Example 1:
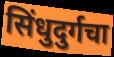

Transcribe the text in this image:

सिंधुदुर्गचा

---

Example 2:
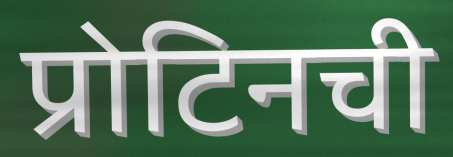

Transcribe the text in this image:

प्रोटिनची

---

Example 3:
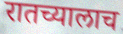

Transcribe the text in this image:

रातच्यालाच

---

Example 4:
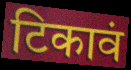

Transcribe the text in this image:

टिकावं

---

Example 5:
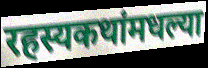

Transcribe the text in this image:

रहस्यकथांमधल्या